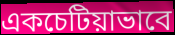
একচেটিয়াভাবে